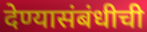
देण्यासंबंधीची